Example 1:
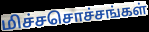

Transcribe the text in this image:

மிச்சசொச்சங்கள்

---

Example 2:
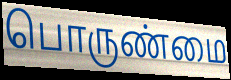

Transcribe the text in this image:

பொருண்மை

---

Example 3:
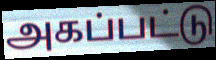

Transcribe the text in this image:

அகப்பட்டு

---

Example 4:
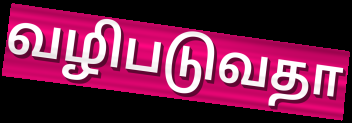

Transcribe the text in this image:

வழிபடுவதா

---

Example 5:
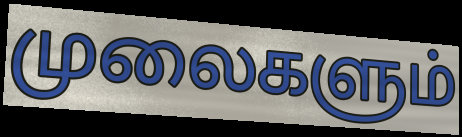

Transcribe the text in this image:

முலைகளும்